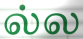
ல்ல